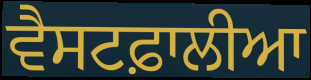
ਵੈਸਟਫ਼ਾਲੀਆ